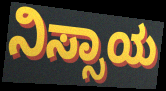
ನಿಸ್ಸಾಯ